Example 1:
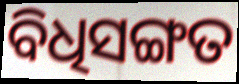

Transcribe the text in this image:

ବିଧିସଙ୍ଗତ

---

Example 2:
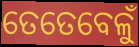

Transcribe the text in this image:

ତେତେବେଳୁଁ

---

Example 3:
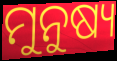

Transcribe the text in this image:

ମୁନୁଷ୍ୟ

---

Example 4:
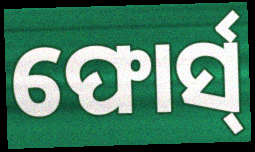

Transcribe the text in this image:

ଫୋର୍ସ୍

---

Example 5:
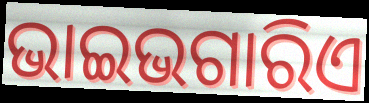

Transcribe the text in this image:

ଭାଇଭଗାରିଏ